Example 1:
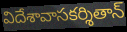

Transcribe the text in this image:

విదేశావాసకర్శితాన్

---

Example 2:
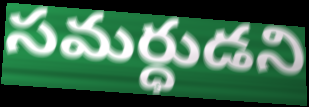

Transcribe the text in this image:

సమర్ధుడని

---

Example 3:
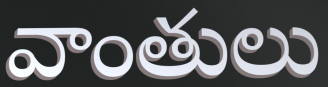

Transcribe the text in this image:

వాంతులు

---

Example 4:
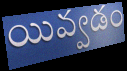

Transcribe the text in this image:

యివ్వడం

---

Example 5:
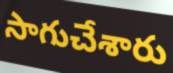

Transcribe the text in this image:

సాగుచేశారు